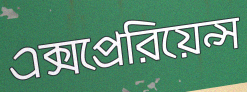
এক্সপ্রেরিয়েন্স